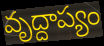
వృద్దాప్యం